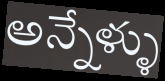
అన్నేళ్ళు